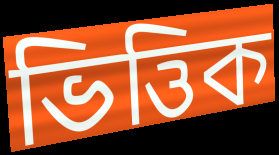
ভিত্তিক